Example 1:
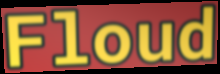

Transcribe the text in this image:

Floud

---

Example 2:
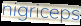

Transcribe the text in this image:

nigriceps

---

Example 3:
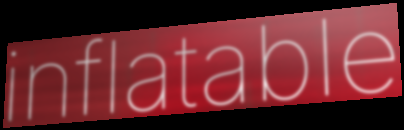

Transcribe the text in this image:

inflatable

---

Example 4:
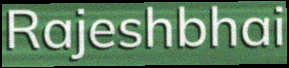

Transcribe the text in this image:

Rajeshbhai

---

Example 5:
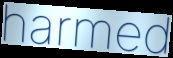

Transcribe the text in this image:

harmed